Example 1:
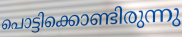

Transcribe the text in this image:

പൊട്ടിക്കൊണ്ടിരുന്നു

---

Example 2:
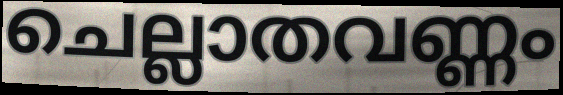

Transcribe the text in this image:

ചെല്ലാതവണ്ണം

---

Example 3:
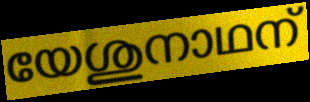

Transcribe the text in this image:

യേശുനാഥന്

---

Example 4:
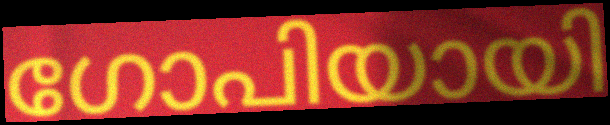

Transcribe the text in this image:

ഗോപിയായി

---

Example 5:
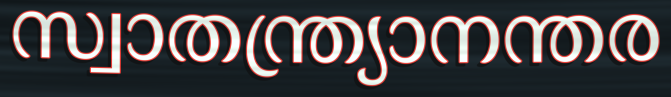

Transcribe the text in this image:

സ്വാതന്ത്ര്യാനന്തര